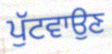
ਪੁੱਟਵਾਉਣ